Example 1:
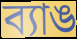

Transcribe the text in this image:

ব্যাঙ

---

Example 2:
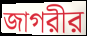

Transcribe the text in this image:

জাগরীর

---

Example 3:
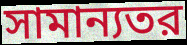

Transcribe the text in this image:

সামান্যতর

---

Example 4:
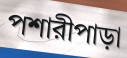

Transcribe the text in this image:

পশারীপাড়া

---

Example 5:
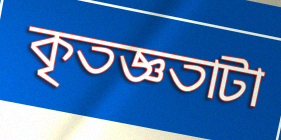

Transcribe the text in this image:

কৃতজ্ঞতাটা